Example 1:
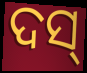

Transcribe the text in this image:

ଦସ୍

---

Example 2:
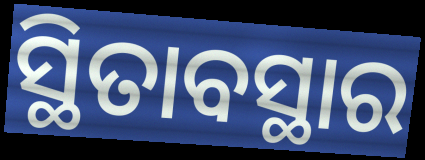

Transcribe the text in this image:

ସ୍ଥିତାବସ୍ଥାର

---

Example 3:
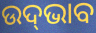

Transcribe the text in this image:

ଉଦ୍‍ଭାବ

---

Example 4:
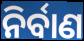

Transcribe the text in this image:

ନିର୍ବାଣ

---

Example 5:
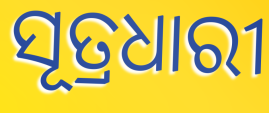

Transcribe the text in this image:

ସୂତ୍ରଧାରୀ